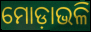
ମୋଡ଼ାଭଳି